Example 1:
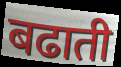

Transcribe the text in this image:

बढाती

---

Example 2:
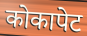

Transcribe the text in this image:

कोकापेट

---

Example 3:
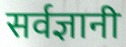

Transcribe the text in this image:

सर्वज्ञानी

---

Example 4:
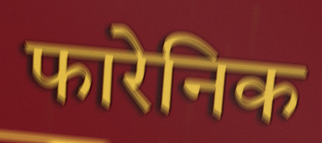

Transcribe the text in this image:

फारेनिक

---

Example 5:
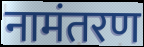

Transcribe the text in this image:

नामंतरण